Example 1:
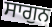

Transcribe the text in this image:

ਸਾਗੁਨ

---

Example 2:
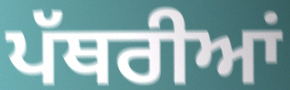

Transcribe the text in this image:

ਪੱਥਰੀਆਂ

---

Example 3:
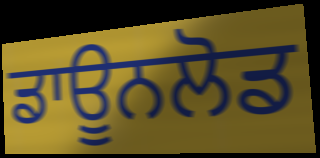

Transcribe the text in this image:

ਡਾਊਨਲੋਡ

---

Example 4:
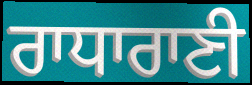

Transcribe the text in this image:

ਰਾਧਾਰਾਣੀ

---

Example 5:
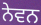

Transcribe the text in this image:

ਨੇਵਨ